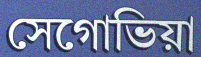
সেগোভিয়া